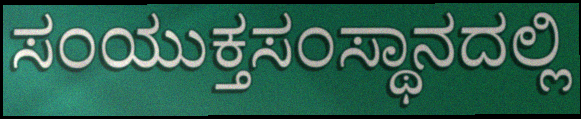
ಸಂಯುಕ್ತಸಂಸ್ಥಾನದಲ್ಲಿ